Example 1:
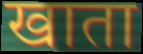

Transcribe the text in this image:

खाता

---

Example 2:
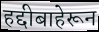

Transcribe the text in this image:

हद्दीबाहेरून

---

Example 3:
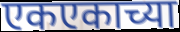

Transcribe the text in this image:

एकएकाच्या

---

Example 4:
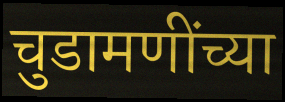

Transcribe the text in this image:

चुडामणींच्या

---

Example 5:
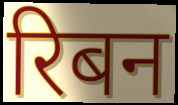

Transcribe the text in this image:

रिबन